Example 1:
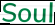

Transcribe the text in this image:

Soul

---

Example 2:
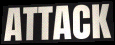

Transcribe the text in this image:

ATTACK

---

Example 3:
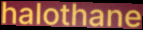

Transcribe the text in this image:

halothane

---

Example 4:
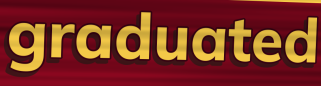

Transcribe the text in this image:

graduated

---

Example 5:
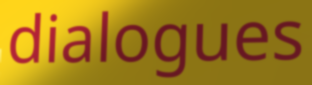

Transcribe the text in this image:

dialogues